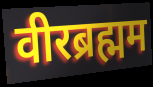
वीरब्रह्मम